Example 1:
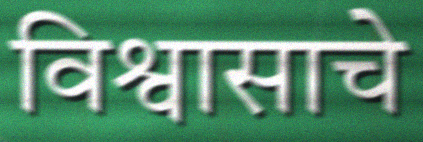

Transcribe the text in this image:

विश्वासाचे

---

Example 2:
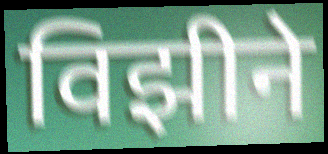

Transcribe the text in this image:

विझीने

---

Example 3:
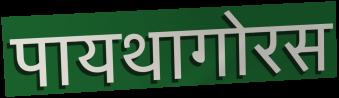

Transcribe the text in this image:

पायथागोरस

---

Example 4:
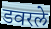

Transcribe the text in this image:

डवरले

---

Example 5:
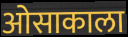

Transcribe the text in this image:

ओसाकाला